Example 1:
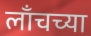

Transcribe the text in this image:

लाँचच्या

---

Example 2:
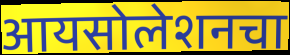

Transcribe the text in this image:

आयसोलेशनचा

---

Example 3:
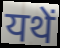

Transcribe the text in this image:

यथें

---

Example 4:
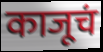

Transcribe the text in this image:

काजूचं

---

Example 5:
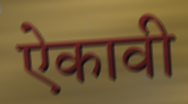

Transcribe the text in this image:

ऐकावी